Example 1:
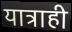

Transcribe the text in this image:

यात्राही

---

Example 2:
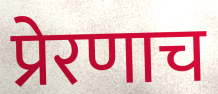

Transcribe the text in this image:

प्रेरणाच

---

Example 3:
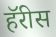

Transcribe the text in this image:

हॅरीस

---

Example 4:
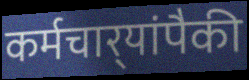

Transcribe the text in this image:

कर्मचार्‍यांपैकी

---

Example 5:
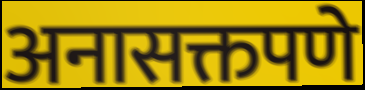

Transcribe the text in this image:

अनासक्तपणे